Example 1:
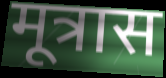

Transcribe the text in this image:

मूत्रास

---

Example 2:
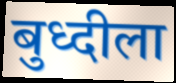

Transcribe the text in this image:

बुध्दीला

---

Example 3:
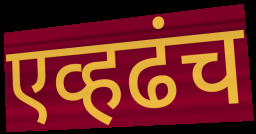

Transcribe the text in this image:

एव्हढंच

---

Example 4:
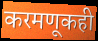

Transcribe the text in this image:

करमणूकही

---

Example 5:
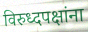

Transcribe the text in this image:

विरुध्दपक्षांना